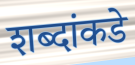
शब्दांकडे